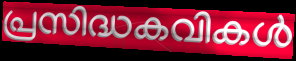
പ്രസിദ്ധകവികൾ